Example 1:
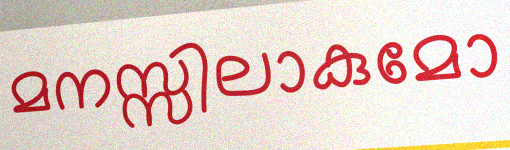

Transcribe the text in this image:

മനസ്സിലാകുമോ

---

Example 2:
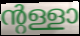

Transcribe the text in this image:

ന്റള്ളാ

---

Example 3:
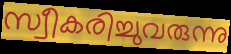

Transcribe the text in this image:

സ്വീകരിച്ചുവരുന്നു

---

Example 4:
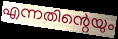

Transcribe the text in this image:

എന്നതിന്റെയും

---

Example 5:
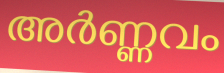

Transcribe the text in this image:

അർണ്ണവം